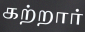
கற்றார்